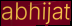
abhijat